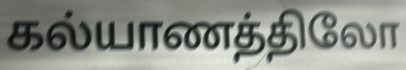
கல்யாணத்திலோ